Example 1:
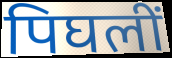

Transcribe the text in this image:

पिघलीं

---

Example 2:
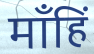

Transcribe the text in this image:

माँहिं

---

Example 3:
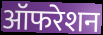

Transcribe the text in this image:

ऑफरेशन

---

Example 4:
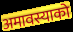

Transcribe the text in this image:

अमावस्याको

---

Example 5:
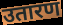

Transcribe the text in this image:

उतारण